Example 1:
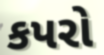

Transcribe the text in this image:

કપરો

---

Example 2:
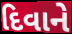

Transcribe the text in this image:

દિવાને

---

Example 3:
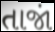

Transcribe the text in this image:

તાજાં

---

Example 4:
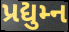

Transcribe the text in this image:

પ્રદ્યુમ્ન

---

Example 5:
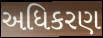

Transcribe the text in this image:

અધિકરણ